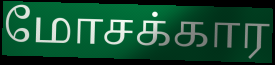
மோசக்கார